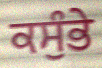
ਕਸੁੰਭੇ